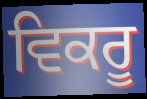
ਵਿਕਰੂ